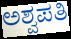
ಅಶ್ವಪತಿ